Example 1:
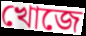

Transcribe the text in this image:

খোজে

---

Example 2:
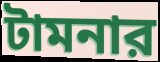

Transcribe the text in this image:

টামনার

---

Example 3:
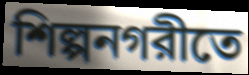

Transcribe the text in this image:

শিল্পনগরীতে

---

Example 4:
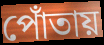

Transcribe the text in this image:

পোঁতায়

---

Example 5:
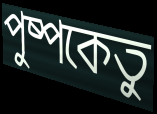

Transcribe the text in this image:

পুষ্পকেতু